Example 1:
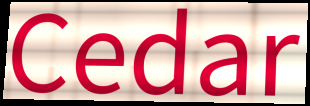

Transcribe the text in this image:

Cedar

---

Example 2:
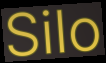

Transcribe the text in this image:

Silo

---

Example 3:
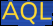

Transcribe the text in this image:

AQL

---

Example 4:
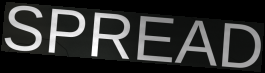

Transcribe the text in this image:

SPREAD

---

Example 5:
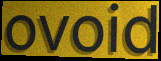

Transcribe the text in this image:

ovoid